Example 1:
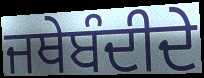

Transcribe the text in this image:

ਜਥੇਬੰਦੀਦੇ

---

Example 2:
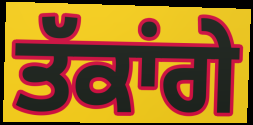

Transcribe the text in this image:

ਤੱਕਾਂਗੇ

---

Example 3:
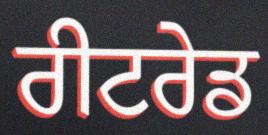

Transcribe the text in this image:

ਰੀਟਰੇਡ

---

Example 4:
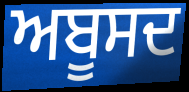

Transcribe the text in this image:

ਅਬੂਸਦ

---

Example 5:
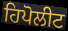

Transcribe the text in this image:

ਹਿਪੋਲੀਟ